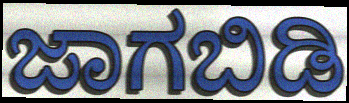
ಜಾಗಬಿಡಿ